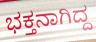
ಭಕ್ತನಾಗಿದ್ದ